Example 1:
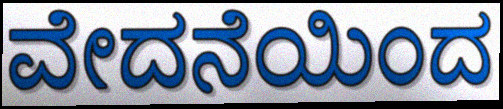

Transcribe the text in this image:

ವೇದನೆಯಿಂದ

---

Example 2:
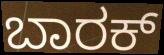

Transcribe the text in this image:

ಬಾರಕ್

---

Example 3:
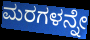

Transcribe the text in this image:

ಮರಗಳನ್ನೇ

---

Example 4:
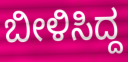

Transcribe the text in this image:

ಬೀಳಿಸಿದ್ದ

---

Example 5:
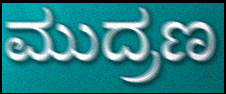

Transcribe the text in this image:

ಮುದ್ರಣ